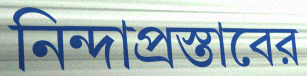
নিন্দাপ্রস্তাবের